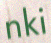
nki